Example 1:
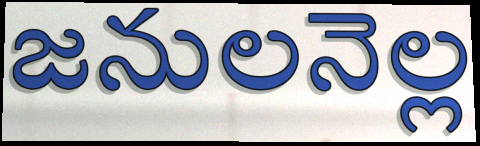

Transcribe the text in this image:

జనులనెల్ల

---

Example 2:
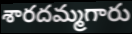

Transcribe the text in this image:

శారదమ్మగారు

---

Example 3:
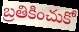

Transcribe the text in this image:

బ్రతికించుకో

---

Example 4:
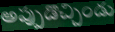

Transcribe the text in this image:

అప్పుడొచ్చిండు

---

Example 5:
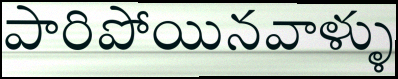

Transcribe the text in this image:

పారిపోయినవాళ్ళు